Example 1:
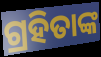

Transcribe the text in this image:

ଗ୍ରହିତାଙ୍କ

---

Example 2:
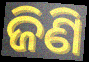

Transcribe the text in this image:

ଜିଣି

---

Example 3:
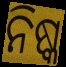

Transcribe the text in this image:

ନିଷ୍କ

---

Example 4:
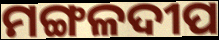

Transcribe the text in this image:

ମଙ୍ଗଳଦୀପ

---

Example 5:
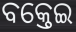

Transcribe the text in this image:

ବକ୍ତେଇ